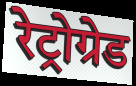
रेट्रोग्रेड